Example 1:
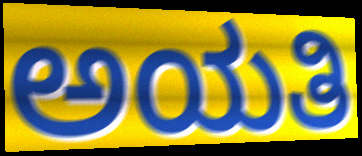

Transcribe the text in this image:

ಅಯತಿ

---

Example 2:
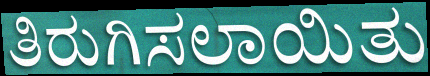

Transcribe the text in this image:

ತಿರುಗಿಸಲಾಯಿತು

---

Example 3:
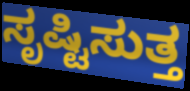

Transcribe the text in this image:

ಸೃಷ್ಟಿಸುತ್ತ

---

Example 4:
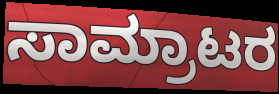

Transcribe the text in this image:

ಸಾಮ್ರಾಟರ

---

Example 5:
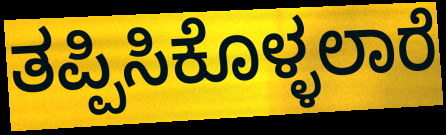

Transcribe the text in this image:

ತಪ್ಪಿಸಿಕೊಳ್ಳಲಾರೆ